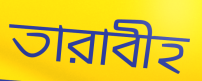
তারাবীহ